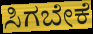
ಸಿಗಬೇಕೆ